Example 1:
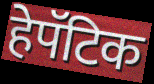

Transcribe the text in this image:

हेपॅटिक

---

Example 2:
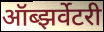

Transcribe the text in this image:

ऑब्झर्वेटरी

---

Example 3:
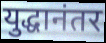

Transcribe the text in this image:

युद्धानंतर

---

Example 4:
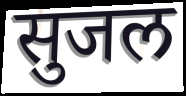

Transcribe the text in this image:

सुजल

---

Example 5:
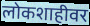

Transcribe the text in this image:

लोकशाहीवर